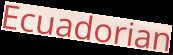
Ecuadorian